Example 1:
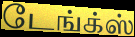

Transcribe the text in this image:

டேங்க்ஸ்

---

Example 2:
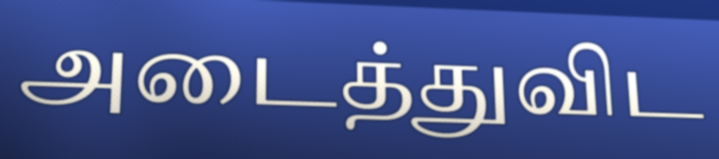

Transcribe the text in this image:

அடைத்துவிட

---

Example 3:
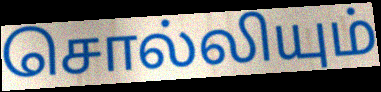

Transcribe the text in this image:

சொல்லியும்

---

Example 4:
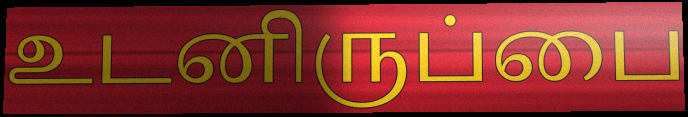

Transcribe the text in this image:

உடனிருப்பை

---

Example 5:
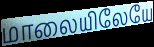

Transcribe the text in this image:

மாலையிலேயே